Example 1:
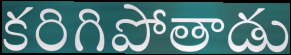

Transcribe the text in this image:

కరిగిపోతాడు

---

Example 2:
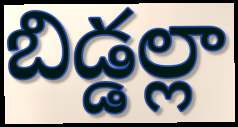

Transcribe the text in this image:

బిడ్డల్లా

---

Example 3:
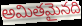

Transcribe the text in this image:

అమితమైనది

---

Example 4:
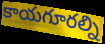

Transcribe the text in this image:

కాయగూరల్ని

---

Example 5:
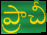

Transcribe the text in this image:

ప్రాచీ